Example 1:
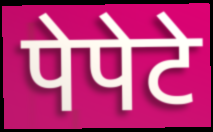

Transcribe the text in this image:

पेपेटे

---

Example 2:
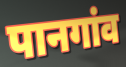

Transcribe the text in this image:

पानगांव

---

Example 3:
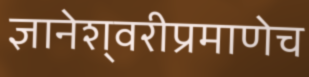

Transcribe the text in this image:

ज्ञानेश्वरीप्रमाणेच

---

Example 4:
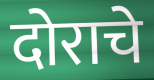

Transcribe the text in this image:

दोराचे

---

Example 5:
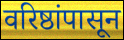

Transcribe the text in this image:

वरिष्ठांपासून